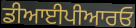
ਡੀਆਈਪੀਆਰਓ